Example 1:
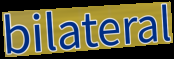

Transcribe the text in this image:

bilateral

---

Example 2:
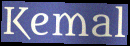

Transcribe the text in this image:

Kemal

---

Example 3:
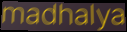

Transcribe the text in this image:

madhalya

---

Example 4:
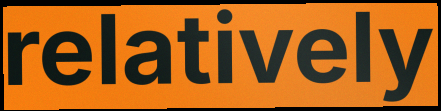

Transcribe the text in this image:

relatively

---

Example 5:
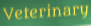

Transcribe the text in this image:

Veterinary